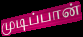
முடிப்பான்